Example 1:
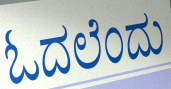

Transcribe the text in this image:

ಓದಲೆಂದು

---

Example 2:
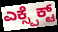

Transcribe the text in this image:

ಎಕ್ಸ್ಪೆಕ್ಟ್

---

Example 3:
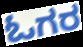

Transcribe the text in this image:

ಓಗರ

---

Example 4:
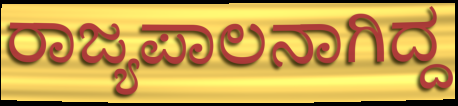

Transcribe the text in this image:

ರಾಜ್ಯಪಾಲನಾಗಿದ್ದ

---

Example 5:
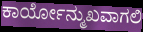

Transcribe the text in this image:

ಕಾರ್ಯೋನ್ಮುಖವಾಗಲಿ